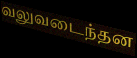
வலுவடைந்தன